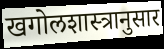
खगोलशास्त्रानुसार